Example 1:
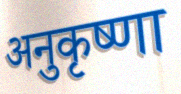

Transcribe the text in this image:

अनुकृष्णा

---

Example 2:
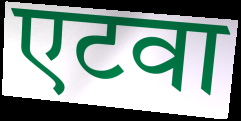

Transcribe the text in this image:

एटवा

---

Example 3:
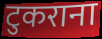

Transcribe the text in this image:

टुकराना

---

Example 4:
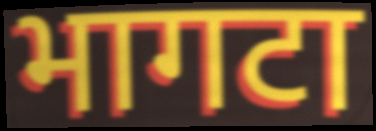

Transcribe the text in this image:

भागटा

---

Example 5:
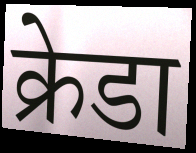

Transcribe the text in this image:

क्रेडा